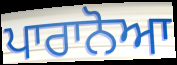
ਪਾਰਾਨੋਆ